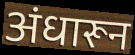
अंधारून